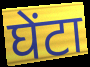
घेंटा